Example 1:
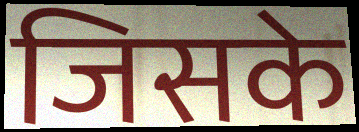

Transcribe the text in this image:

जिसके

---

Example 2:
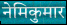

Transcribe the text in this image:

नेमिकुमार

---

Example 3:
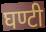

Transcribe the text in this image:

घण्टी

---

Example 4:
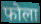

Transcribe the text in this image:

फोला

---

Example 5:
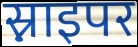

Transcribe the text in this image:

स्नाइपर